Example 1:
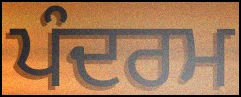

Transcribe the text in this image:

ਪੰਦਰਮ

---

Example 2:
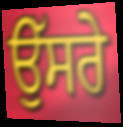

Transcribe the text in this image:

ਉੱਸਰੇ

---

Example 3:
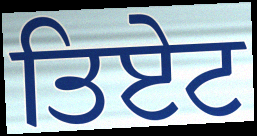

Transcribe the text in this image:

ਤਿਏਟ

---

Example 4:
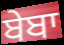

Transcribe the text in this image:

ਬੇਬਾ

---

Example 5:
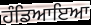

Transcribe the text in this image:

ਹੰਡਿਆਇਆ